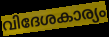
വിദേശകാര്യം